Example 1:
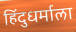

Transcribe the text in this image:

हिंदुधर्माला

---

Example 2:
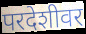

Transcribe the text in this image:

परदेशीवर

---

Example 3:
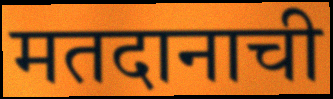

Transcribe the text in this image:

मतदानाची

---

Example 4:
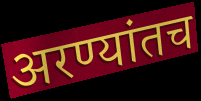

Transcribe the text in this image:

अरण्यांतच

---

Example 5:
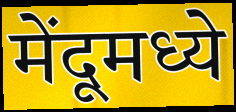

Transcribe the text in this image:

मेंदूमध्ये